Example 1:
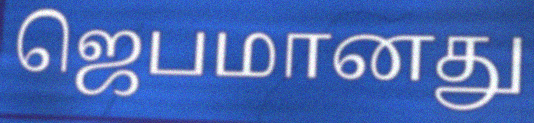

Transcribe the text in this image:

ஜெபமானது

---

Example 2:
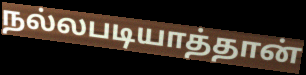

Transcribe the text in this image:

நல்லபடியாத்தான்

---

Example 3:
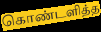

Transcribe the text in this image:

கொண்டளித்த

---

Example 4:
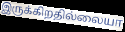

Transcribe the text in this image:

இருக்கிறதில்லையா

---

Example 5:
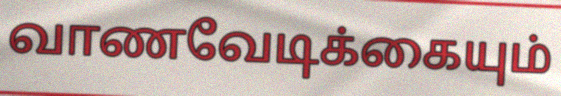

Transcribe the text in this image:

வாணவேடிக்கையும்